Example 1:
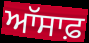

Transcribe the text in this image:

ਆੱਸਾਫ਼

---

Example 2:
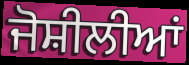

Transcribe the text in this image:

ਜੋਸ਼ੀਲੀਆਂ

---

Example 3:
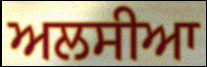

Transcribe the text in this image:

ਅਲਸੀਆ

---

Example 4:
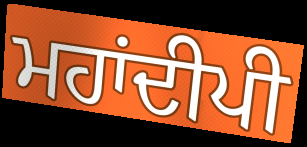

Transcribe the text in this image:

ਮਹਾਂਦੀਪੀ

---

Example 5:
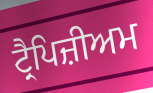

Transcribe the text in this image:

ਟ੍ਰੈਪਿਜ਼ੀਅਮ